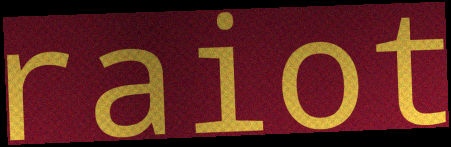
raiot